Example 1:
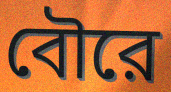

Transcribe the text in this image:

বৌরে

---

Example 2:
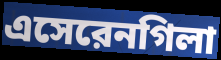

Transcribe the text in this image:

এসেরেনগিলা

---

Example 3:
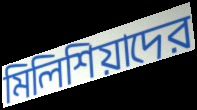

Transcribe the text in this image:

মিলিশিয়াদের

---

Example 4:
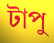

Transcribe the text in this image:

টাপু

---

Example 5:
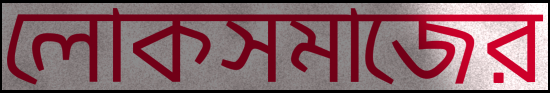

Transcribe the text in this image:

লোকসমাজের